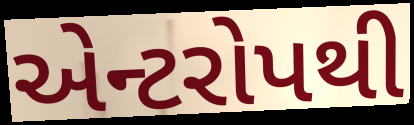
એન્ટરોપથી